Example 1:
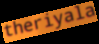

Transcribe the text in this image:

theriyala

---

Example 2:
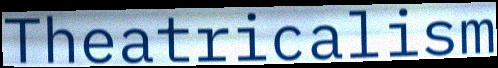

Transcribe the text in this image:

Theatricalism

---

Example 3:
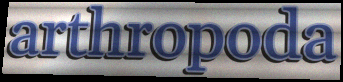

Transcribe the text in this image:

arthropoda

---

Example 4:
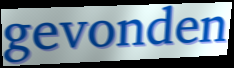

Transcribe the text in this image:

gevonden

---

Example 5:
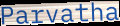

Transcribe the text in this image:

Parvatha